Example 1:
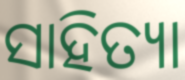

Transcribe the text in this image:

ସାହିତ୍ୟା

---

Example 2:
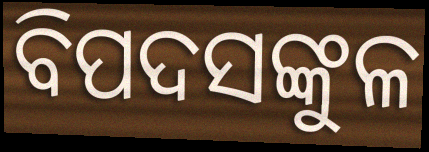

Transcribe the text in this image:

ବିପଦସଙ୍କୁଳ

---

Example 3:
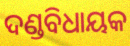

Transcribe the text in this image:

ଦଣ୍ଡବିଧାୟକ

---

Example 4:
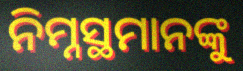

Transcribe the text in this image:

ନିମ୍ନସ୍ଥମାନଙ୍କୁ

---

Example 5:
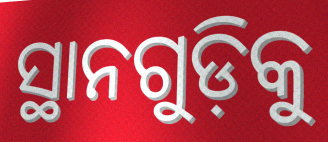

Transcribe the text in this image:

ସ୍ଥାନଗୁଡ଼ିକୁ